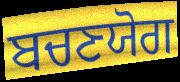
ਬਚਣਯੋਗ